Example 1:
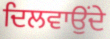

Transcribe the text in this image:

ਦਿਲਵਾਉਂਦੇ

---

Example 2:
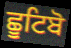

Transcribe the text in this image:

ਛੂਟਿਬੋ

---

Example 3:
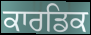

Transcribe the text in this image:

ਕਾਰਡਿਕ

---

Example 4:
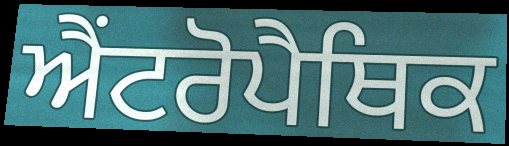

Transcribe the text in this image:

ਐਂਟਰੋਪੈਥਿਕ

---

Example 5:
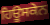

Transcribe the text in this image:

ਹਿਊਸਕੇਨ